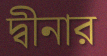
দ্বীনার